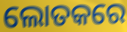
ଲୋତକରେ